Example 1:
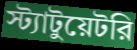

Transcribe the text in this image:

স্ট্যাটুয়েটরি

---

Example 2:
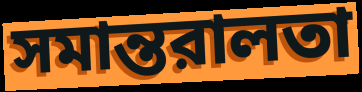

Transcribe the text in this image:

সমান্তরালতা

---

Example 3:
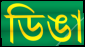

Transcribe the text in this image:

ডিঙা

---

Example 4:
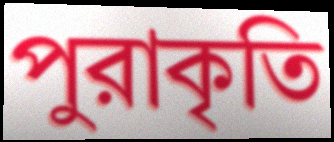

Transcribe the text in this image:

পুরাকৃতি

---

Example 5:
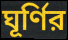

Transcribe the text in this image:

ঘূর্ণির